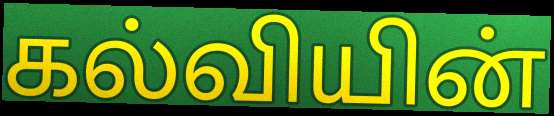
கல்வியின்